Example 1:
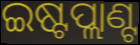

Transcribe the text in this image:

ଇଷ୍ଟପ୍ଲାଣ୍ଟ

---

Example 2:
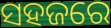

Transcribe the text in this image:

ସହଜରେ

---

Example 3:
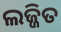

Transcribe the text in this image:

ଲଜ୍ଜିତ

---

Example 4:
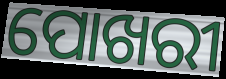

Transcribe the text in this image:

ପୋଖରୀ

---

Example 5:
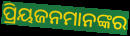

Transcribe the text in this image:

ପ୍ରିୟଜନମାନଙ୍କର